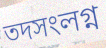
তদসংলগ্ন